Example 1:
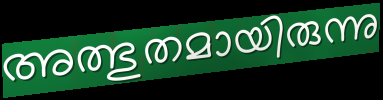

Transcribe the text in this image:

അത്ഭുതമായിരുന്നു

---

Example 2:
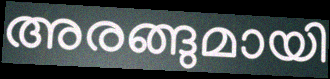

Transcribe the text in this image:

അരങ്ങുമായി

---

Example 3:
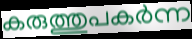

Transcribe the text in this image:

കരുത്തുപകർന്ന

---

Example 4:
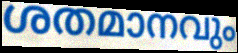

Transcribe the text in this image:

ശതമാനവും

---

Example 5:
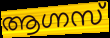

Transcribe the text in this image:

ആഗ്നസ്